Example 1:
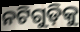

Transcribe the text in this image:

ନଟିଗୁଡ଼ିକୁ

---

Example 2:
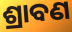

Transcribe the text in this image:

ଶ୍ରାବଣ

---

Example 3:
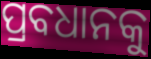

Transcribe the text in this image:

ପ୍ରବଧାନକୁ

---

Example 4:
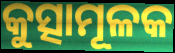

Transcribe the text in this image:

କୁତ୍ସାମୂଳକ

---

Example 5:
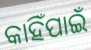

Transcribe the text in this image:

କାହିଁପାଇଁ